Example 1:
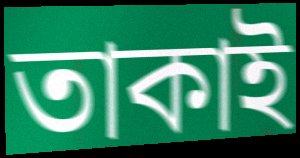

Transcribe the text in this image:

তাকাই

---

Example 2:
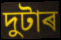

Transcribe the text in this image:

দুটাৰ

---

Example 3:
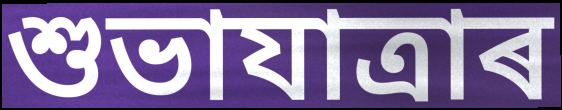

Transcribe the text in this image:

শুভাযাত্ৰাৰ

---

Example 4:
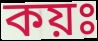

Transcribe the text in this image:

কয়ঃ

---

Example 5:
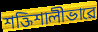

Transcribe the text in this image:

শক্তিশালীভাৱে